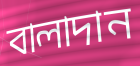
বালাদান